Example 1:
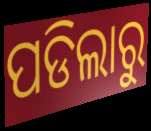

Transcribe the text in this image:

ପଡିଲାରୁ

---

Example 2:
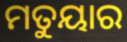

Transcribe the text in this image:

ମତୁୟାର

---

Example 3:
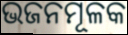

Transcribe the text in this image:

ଭଜନମୂଳକ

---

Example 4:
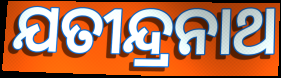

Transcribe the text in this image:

ଯତୀନ୍ଦ୍ରନାଥ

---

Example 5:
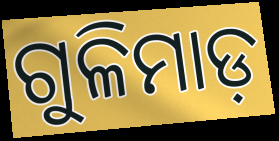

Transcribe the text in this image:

ଗୁଳିମାଡ଼